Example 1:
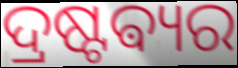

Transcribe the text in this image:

ଦ୍ରଷ୍ଟଵ୍ୟର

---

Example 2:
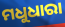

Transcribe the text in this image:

ମଧୁଧାରା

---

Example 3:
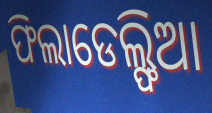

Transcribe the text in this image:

ଫିଲାଡେଲ୍ଫିଆ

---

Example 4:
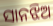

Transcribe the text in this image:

ସାନଝିଅ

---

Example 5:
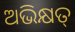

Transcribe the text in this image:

ଅଭିକ୍ଷତ୍